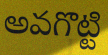
అవగొట్టి